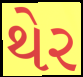
થેર